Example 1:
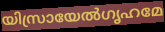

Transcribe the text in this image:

യിസ്രായേൽഗൃഹമേ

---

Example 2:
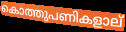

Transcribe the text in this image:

കൊത്തുപണികളാല്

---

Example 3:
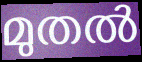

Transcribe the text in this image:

മുതൽ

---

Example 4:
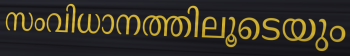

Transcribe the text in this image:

സംവിധാനത്തിലൂടെയും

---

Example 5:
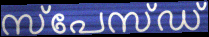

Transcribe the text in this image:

സ്പേസ്ഡ്